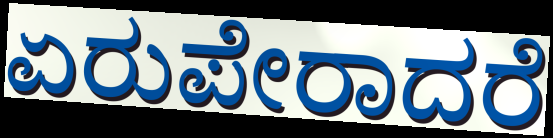
ಏರುಪೇರಾದರೆ